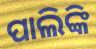
ପାଲିଙ୍କି